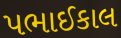
પભાઈકાલ